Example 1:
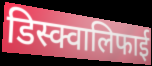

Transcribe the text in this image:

डिस्क्वालिफाई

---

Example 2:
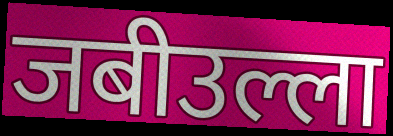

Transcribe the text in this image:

जबीउल्ला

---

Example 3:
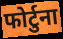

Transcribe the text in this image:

फोर्टुना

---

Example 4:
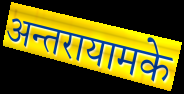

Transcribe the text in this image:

अन्तरायामके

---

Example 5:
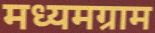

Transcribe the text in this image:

मध्यमग्राम